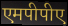
एमपीपीए